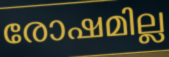
രോഷമില്ല